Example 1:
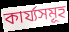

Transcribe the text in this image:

কাৰ্য্যসমূহ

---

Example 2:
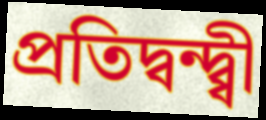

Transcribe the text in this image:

প্ৰতিদ্বন্দ্ব্বী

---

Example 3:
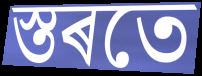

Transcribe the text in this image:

স্তৰতে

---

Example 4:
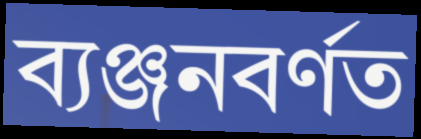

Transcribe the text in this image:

ব্যঞ্জনবৰ্ণত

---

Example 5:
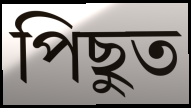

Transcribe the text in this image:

পিছুত